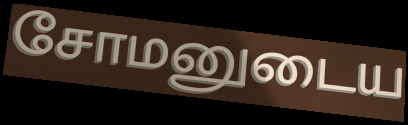
சோமனுடைய